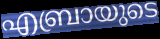
എബ്രായുടെ